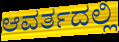
ಆವರ್ತದಲ್ಲಿ